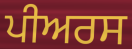
ਪੀਅਰਸ